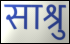
साश्रु